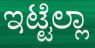
ಇಟ್ಟೆಲ್ಲಾ